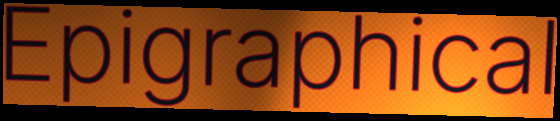
Epigraphical